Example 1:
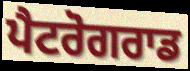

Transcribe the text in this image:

ਪੈਟਰੋਗਰਾਡ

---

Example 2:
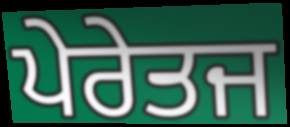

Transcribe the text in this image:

ਪੇਰੇਤਜ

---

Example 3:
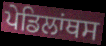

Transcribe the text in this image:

ਪੇਡਿਲਾਂਥਸ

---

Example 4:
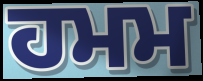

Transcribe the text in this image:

ਹਮਮ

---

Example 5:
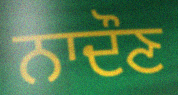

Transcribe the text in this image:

ਨਾਦੌਣ